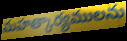
మహత్కార్యములను